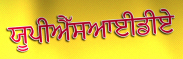
ਯੂਪੀਐੱਸਆਈਡੀਏ